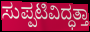
ಸುಪ್ಪಟಿವಿದ್ಧತ್ತಾ